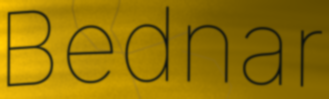
Bednar